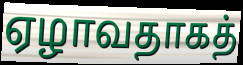
ஏழாவதாகத்